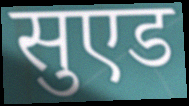
सुएड